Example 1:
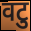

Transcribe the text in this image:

वटु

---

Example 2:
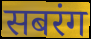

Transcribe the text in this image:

सबरंग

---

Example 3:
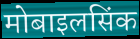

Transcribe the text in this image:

मोबाइलसिंक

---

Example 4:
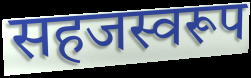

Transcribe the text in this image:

सहजस्वरूप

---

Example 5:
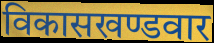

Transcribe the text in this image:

विकासखण्‍डवार